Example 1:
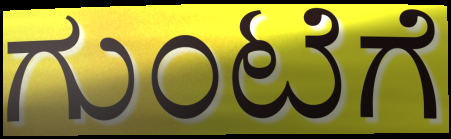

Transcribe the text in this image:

ಗುಂಟೆಗೆ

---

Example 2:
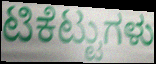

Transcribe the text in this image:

ಟಿಕೆಟ್ಟುಗಳು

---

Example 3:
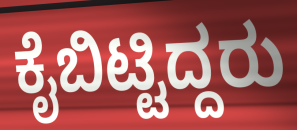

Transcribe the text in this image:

ಕೈಬಿಟ್ಟಿದ್ದರು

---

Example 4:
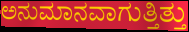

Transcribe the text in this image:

ಅನುಮಾನವಾಗುತ್ತಿತ್ತು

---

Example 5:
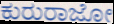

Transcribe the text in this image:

ಕುರುರಾಜೋ